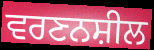
ਵਰਣਨਸ਼ੀਲ